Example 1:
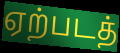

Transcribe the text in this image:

ஏற்படத்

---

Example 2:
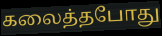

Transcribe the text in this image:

கலைத்தபோது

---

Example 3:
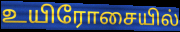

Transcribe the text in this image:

உயிரோசையில்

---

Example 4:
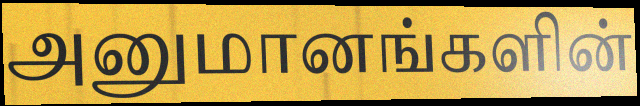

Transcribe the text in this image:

அனுமானங்களின்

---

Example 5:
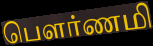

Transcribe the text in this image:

பௌர்ணமி